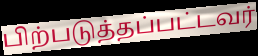
பிற்படுத்தப்பட்டவர்